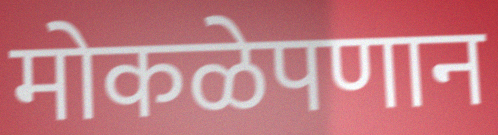
मोकळेपणान